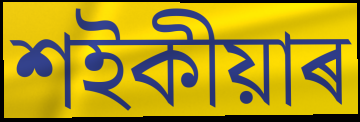
শইকীয়াৰ